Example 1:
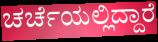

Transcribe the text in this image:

ಚರ್ಚೆಯಲ್ಲಿದ್ದಾರೆ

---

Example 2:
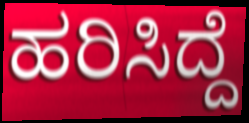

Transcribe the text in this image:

ಹರಿಸಿದ್ದೆ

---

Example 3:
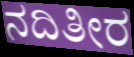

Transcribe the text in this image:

ನದಿತೀರ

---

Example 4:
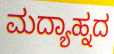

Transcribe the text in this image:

ಮದ್ಯಾಹ್ನದ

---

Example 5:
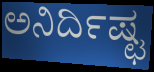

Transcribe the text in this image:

ಅನಿರ್ದಿಷ್ಟ